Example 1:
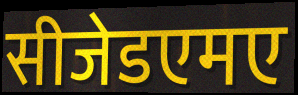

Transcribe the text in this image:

सीजेडएमए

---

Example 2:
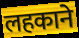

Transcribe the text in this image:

लहकाने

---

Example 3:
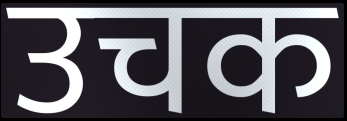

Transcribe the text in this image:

उचक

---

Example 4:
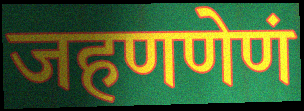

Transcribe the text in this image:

जहणणेणं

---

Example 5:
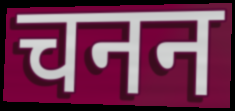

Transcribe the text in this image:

चनन